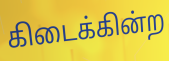
கிடைக்கின்ற